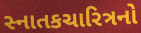
સ્નાતકચારિત્રનો